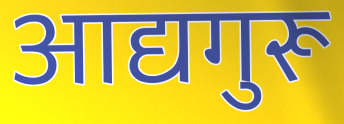
आद्यगुरू